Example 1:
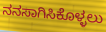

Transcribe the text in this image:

ನನಸಾಗಿಸಿಕೊಳ್ಳಲು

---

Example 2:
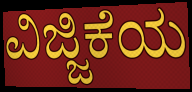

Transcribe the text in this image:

ವಿಜ್ಜಿಕೆಯ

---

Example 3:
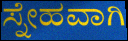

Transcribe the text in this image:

ಸ್ನೇಹವಾಗಿ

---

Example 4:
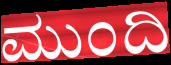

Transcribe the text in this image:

ಮುಂದಿ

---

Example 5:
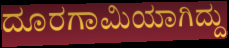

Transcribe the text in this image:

ದೂರಗಾಮಿಯಾಗಿದ್ದು